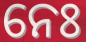
ନେଃ